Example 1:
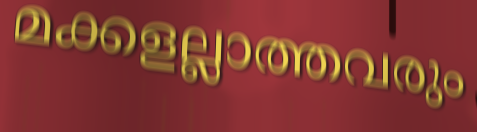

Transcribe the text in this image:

മക്കളല്ലാത്തവരും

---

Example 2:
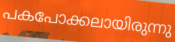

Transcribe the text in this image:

പകപോക്കലായിരുന്നു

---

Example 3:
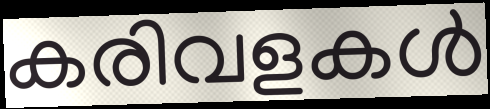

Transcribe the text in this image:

കരിവളകൾ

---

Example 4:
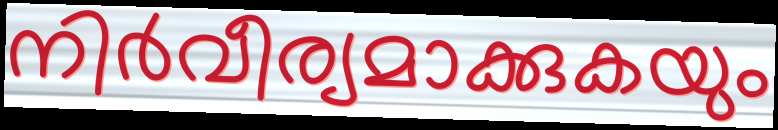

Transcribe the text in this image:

നിർവീര്യമാക്കുകയും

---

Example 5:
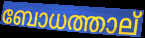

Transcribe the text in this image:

ബോധത്താല്